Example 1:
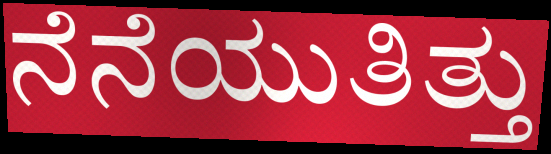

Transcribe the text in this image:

ನೆನೆಯುತಿತ್ತು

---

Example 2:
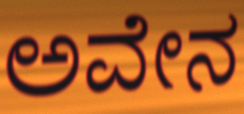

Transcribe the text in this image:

ಅವೇನ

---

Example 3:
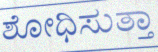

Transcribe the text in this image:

ಶೋಧಿಸುತ್ತಾ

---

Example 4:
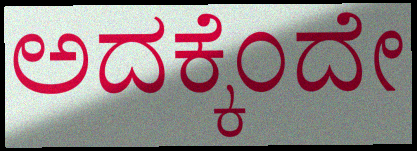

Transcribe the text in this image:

ಅದಕ್ಕೆಂದೇ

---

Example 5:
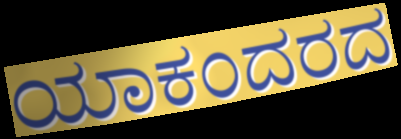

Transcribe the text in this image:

ಯಾಕಂದರದ